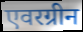
एवरग्रीन